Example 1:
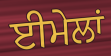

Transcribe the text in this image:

ਈਮੇਲਾਂ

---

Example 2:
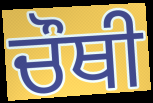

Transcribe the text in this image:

ਚੌਥੀ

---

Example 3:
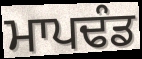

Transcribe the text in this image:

ਮਾਪਢੰਡ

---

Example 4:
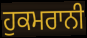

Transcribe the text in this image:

ਹੁਕਮਰਾਨੀ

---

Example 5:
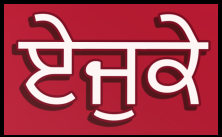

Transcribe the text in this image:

ਏਜੁਕੇ